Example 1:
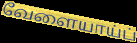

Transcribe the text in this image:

வேளையாய்ப்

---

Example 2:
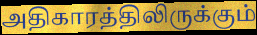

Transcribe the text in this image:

அதிகாரத்திலிருக்கும்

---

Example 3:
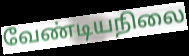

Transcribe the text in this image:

வேண்டியநிலை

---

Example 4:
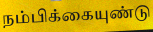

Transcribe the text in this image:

நம்பிக்கையுண்டு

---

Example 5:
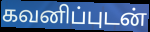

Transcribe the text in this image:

கவனிப்புடன்